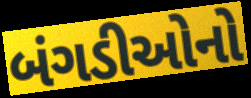
બંગડીઓનો